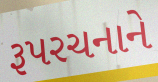
રૂપરચનાને